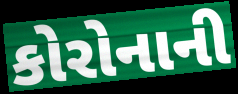
કોરોનાની